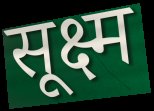
सूक्ष्म